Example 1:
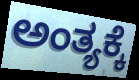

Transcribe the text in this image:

ಅಂತ್ಯಕ್ಕೆ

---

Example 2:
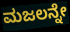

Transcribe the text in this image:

ಮಜಲನ್ನೇ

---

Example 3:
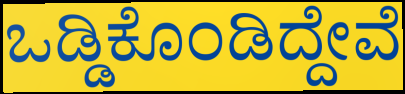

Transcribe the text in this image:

ಒಡ್ಡಿಕೊಂಡಿದ್ದೇವೆ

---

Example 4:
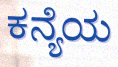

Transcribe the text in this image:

ಕನ್ಯೆಯ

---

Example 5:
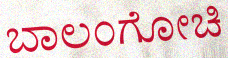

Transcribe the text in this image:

ಬಾಲಂಗೋಚಿ